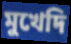
মুখেদি